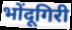
भोंदूगिरी